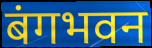
बंगभवन